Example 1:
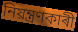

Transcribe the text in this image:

নিয়ন্ত্ৰণকাৰী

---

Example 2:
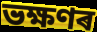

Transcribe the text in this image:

ভক্ষণৰ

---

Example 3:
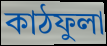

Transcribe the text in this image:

কাঠফুলা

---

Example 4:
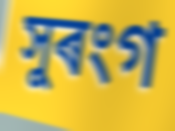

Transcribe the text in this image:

সুৰংগ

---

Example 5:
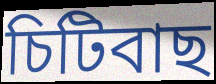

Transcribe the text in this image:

চিটিবাছ